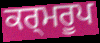
ਕਰ੍ਮਰੂਪ